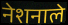
नेशनाले